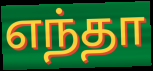
எந்தா